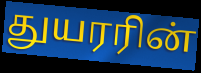
துயரரின்